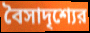
বৈসাদৃশ্যের